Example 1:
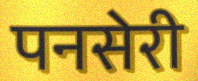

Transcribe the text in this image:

पनसेरी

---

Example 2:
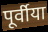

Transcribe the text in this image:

पूर्वीया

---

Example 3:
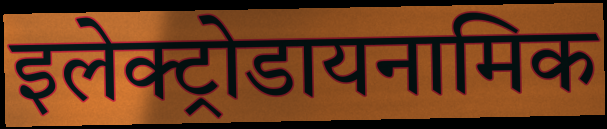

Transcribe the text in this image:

इलेक्ट्रोडायनामिक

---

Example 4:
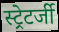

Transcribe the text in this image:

स्ट्रेटर्जी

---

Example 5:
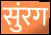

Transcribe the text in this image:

सुंरग